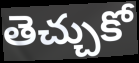
తెచ్చుకో